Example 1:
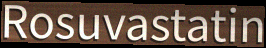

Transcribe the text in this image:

Rosuvastatin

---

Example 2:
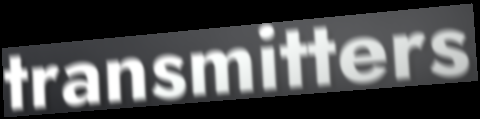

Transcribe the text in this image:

transmitters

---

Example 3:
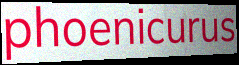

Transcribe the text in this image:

phoenicurus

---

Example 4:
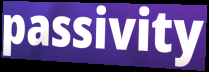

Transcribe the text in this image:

passivity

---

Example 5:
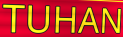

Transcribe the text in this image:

TUHAN